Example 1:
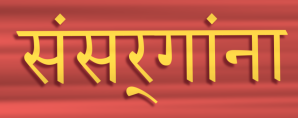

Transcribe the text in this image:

संसर्गांना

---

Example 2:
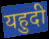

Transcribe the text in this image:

यहुदी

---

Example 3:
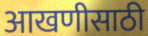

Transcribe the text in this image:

आखणीसाठी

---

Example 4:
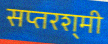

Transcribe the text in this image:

सप्तरश्मी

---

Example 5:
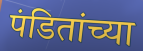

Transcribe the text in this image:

पंडितांच्या